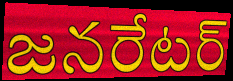
జనరేటర్